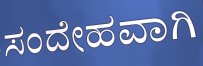
ಸಂದೇಹವಾಗಿ